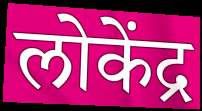
लोकेंद्र